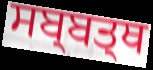
ਸਬ੍ਬਤ੍ਥ